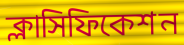
ক্লাসিফিকেশন